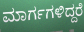
ಮಾರ್ಗಗಳಿದ್ದರೆ